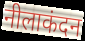
नीलाकंदन